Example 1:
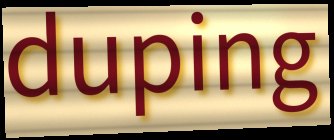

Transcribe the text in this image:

duping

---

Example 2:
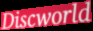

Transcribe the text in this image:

Discworld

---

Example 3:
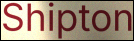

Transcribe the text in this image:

Shipton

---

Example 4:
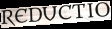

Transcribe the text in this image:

REDUCTIO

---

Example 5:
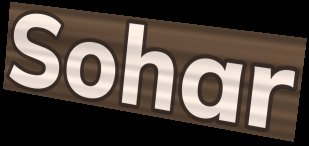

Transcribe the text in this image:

Sohar